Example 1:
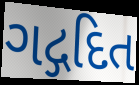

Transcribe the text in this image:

ગદ્ગદિત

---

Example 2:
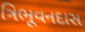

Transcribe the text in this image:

ત્રિભૂવનદાસ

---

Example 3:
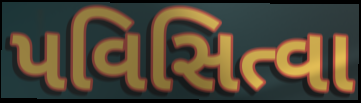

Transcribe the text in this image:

પવિસિત્વા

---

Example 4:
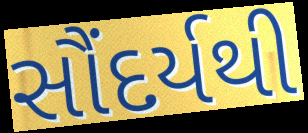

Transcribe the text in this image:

સૌંદર્યથી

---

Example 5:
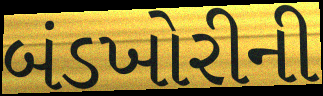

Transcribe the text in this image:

બંડખોરીની